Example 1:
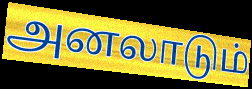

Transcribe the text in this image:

அனலாடும்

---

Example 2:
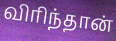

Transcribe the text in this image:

விரிந்தான்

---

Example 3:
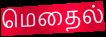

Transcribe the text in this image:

மெதைல்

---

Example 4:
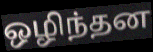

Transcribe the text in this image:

ஒழிந்தன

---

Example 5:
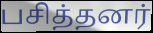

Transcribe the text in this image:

பசித்தனர்